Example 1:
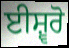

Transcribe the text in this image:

ਈਸ਼੍ਵਰੋ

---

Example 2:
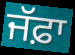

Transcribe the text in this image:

ਜੱਫ਼ਾ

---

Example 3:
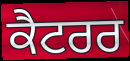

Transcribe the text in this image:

ਕੈਟਰਰ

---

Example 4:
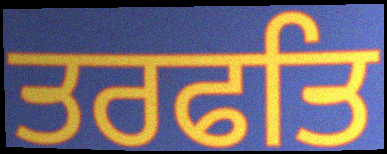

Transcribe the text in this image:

ਤਰਫਤਿ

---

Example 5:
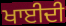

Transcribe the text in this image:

ਖਾਈਦੀ